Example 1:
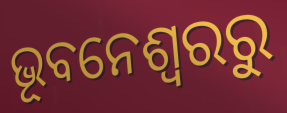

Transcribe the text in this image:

ଭୂବନେଶ୍ୱରରୁ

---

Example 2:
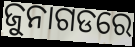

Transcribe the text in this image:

ଜୁନାଗଡରେ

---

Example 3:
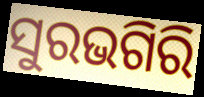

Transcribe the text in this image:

ସୁରଭଗିରି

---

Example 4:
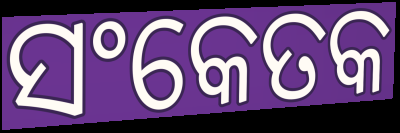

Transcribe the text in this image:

ସଂକେତକ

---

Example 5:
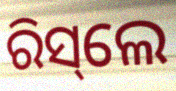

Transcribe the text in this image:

ରିସ୍‌ଲେ